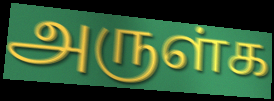
அருள்க